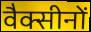
वैक्सीनों